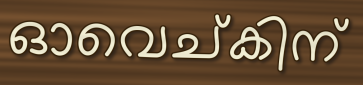
ഓവെച്കിന്